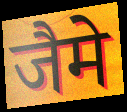
जैमे